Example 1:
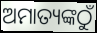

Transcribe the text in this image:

ଅମାତ୍ୟଙ୍କଠୁଁ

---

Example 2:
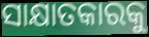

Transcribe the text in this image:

ସାକ୍ଷାତକାରକୁ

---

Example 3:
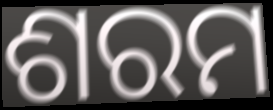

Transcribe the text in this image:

ଶରମ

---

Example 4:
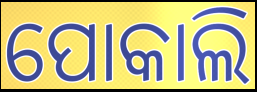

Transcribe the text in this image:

ପୋକାଲି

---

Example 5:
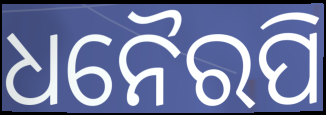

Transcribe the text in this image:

ଧନୈରପି